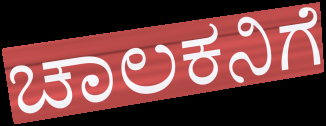
ಚಾಲಕನಿಗೆ